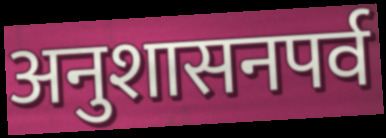
अनुशासनपर्व